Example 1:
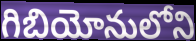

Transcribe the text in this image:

గిబియోనులోని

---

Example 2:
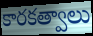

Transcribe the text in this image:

కారకత్వాలు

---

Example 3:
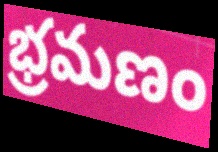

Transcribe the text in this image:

భ్రమణం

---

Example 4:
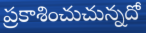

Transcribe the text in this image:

ప్రకాశించుచున్నదో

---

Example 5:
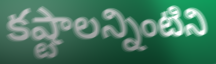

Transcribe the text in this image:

కష్టాలన్నింటిని